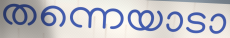
തന്നെയാടാ